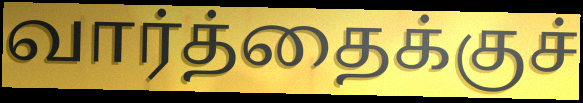
வார்த்தைக்குச்